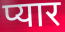
प्यार